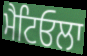
ਮੈਟਿਓਲਾ